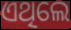
ଏଥିଲେ